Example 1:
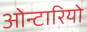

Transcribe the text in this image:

ओन्टारियो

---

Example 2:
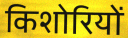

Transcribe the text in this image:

किशोरियों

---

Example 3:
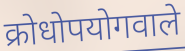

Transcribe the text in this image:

क्रोधोपयोगवाले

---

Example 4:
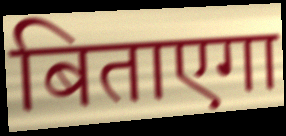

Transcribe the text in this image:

बिताएगा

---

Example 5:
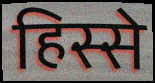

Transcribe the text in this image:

हिस्से